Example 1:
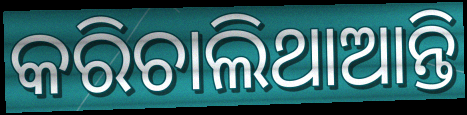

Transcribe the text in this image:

କରିଚାଲିଥାଆନ୍ତି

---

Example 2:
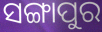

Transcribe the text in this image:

ସଙ୍ଗାପୁର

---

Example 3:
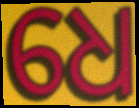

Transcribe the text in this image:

ଧେ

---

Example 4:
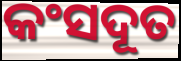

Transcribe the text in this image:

କଂସଦୂତ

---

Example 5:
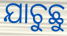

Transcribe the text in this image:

ଯାଚୁଛୁ